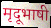
मृदूभाषी